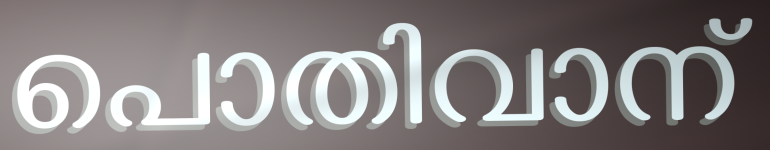
പൊതിവാന്